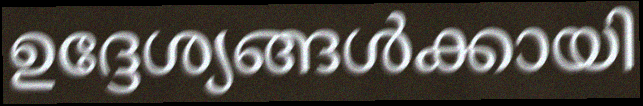
ഉദ്ദേശ്യങ്ങൾക്കായി